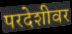
परदेशीवर